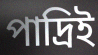
পাদ্রিই